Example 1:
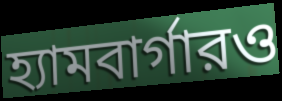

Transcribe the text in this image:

হ্যামবার্গারও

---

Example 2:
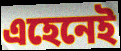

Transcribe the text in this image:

এহেনেই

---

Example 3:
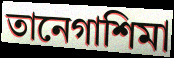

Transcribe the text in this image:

তানেগাশিমা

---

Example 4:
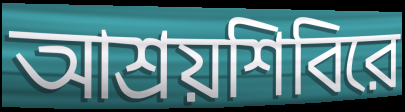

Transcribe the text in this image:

আশ্রয়শিবিরে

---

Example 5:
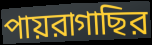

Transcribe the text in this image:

পায়রাগাছির